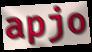
apjo